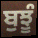
ਬੁਝੂੰ